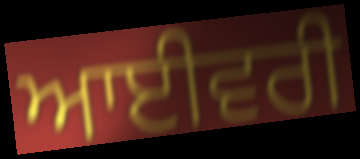
ਆਈਵਰੀ